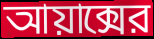
আয়াক্সের